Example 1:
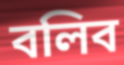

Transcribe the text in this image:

বলিব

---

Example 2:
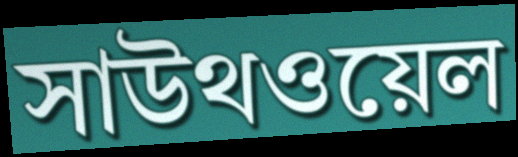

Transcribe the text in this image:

সাউথওয়েল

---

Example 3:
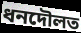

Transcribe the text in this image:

ধনদৌলত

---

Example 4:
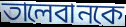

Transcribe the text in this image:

তালেবানকে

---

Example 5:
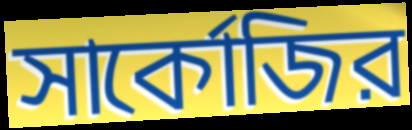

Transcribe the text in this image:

সার্কোজির